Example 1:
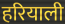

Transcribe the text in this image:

हरियाली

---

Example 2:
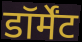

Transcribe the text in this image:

डॉर्मेंट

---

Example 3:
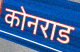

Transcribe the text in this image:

कोनराड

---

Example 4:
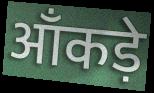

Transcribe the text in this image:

आँकड़े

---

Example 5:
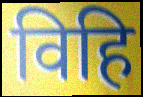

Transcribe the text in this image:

विहि